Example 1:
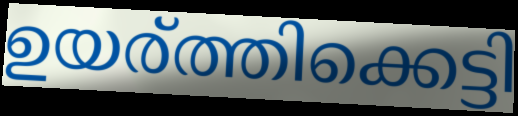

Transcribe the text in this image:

ഉയര്ത്തിക്കെട്ടി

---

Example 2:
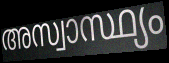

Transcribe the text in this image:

അസ്വാസ്ഥ്യം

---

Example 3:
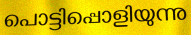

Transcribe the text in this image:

പൊട്ടിപ്പൊളിയുന്നു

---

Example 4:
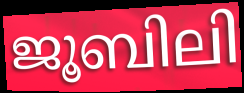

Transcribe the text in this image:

ജൂബിലി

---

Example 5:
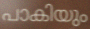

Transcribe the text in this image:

പാകിയും